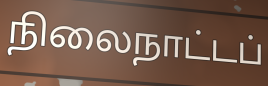
நிலைநாட்டப்